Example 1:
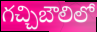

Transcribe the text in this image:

గచ్చిబౌలిలో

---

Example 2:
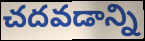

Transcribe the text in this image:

చదవడాన్ని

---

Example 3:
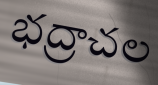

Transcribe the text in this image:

భద్రాచల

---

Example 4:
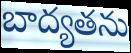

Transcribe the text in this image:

బాద్యతను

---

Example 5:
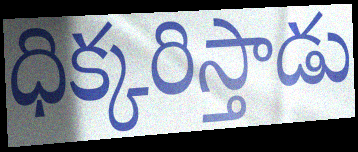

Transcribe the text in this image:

ధిక్కరిస్తాడు